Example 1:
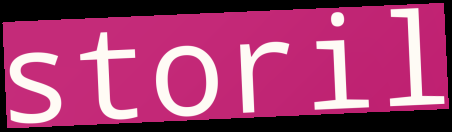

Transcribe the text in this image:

storil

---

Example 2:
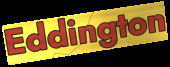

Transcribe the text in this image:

Eddington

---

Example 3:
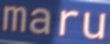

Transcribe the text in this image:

maru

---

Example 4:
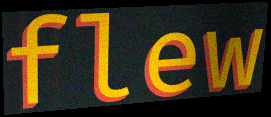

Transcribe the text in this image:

flew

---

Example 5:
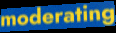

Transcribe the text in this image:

moderating